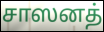
சாஸனத்